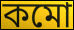
কমো